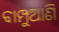
ବାମ୍ପୁଆଣି